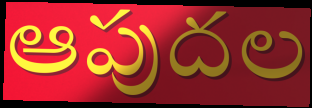
ఆపుదల